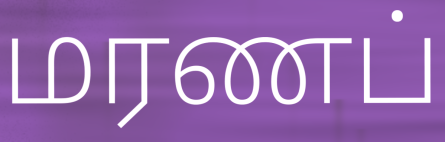
மரணப்